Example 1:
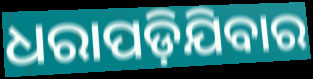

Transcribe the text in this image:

ଧରାପଡ଼ିଯିବାର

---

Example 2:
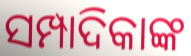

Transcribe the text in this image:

ସମ୍ପାଦିକାଙ୍କ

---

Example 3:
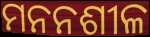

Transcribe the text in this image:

ମନନଶୀଳ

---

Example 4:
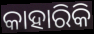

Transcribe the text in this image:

କାହାରିକି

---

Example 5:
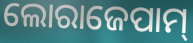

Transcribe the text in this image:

ଲୋରାଜେପାମ୍